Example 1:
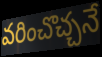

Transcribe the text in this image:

వరించొచ్చనే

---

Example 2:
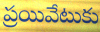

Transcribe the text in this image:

ప్రయివేటుకు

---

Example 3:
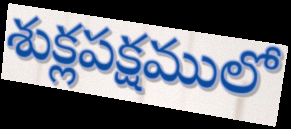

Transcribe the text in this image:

శుక్లపక్షములో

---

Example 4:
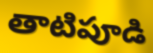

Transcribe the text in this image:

తాటిపూడి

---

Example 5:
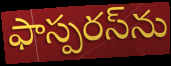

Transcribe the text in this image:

ఫాస్పరస్‌ను